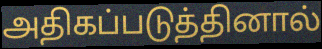
அதிகப்படுத்தினால்